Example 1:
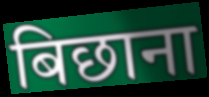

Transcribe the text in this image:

बिछाना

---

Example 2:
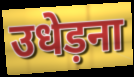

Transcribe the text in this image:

उधेड़ना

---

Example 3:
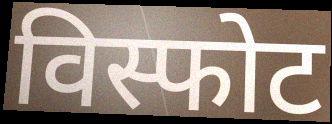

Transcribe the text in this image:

विस्फोट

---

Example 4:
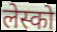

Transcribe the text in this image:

लेस्को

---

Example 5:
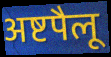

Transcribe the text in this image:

अष्टपैलू